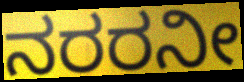
ನರರನೀ